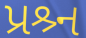
પ્રશ્ર્ન